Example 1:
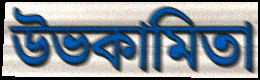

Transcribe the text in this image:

উভকামিতা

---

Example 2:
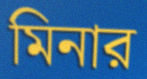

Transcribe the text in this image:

মিনার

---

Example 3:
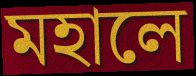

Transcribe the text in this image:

মহালে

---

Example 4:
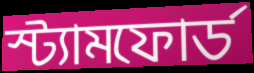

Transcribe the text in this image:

স্ট্যামফোর্ড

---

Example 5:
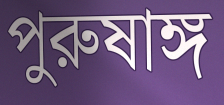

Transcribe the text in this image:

পুরুষাঙ্গ